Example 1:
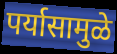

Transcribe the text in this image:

पर्यासामुळे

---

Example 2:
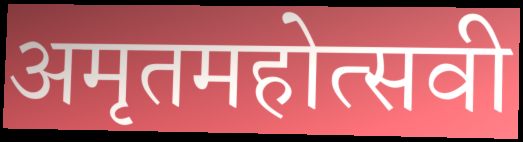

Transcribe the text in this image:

अमृतमहोत्सवी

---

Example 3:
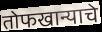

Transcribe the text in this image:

तोफखान्याचे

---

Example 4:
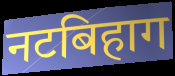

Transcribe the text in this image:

नटबिहाग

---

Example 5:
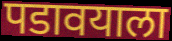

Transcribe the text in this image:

पडावयाला